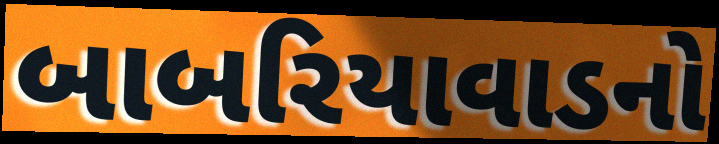
બાબરિયાવાડનો